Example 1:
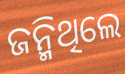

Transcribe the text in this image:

ଜନ୍ମିଥିଲେ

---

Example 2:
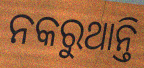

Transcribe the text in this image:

ନକରୁଥାନ୍ତି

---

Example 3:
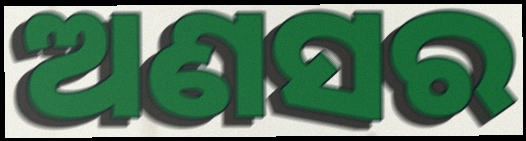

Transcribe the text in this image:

ଅଣସର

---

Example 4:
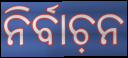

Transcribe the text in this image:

ନିର୍ବାଚ଼ନ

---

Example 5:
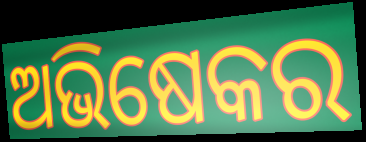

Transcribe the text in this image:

ଅଭିଷେକର